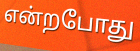
என்றபோது